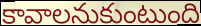
కావాలనుకుంటుంది